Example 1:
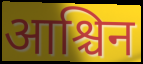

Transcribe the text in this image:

आश्चिन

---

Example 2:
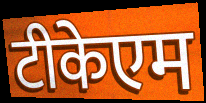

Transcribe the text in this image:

टीकेएम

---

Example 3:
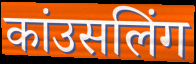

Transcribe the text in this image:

कांउसलिंग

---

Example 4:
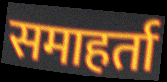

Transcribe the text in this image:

समाहर्ता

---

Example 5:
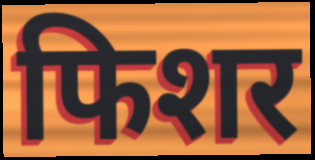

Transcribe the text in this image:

फिशर